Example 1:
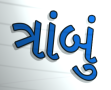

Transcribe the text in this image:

ત્રાંબું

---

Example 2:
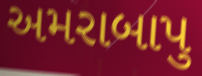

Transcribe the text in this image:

અમરાબાપુ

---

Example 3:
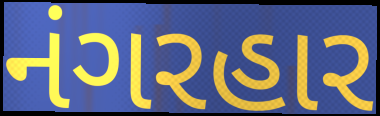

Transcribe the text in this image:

નંગરહાર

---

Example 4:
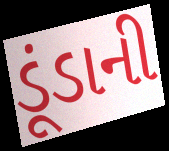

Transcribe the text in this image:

ડૂંડાની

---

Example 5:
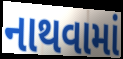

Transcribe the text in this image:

નાથવામાં